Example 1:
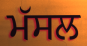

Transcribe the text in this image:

ਮੱਸਲ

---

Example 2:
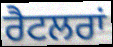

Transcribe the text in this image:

ਰੈਟਲਰਾਂ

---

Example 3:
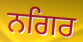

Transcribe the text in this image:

ਨਗਿਰ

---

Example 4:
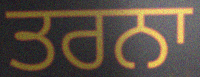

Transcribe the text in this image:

ਤਰਨਾ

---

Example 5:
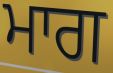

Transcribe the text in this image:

ਮਾਗ